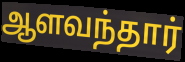
ஆளவந்தார்